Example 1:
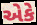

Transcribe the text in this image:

એકે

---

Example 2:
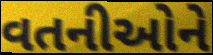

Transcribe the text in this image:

વતનીઓને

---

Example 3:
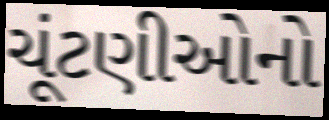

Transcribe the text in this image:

ચૂંટણીઓનો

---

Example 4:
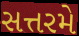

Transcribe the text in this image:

સત્તરમે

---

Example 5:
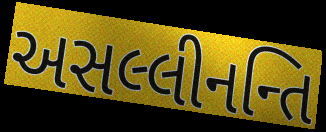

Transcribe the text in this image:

અસલ્લીનન્તિ